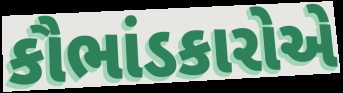
કૌભાંડકારોએ